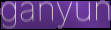
ganyun